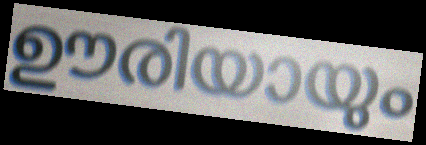
ഊരിയായും